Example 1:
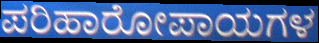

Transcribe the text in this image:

ಪರಿಹಾರೋಪಾಯಗಳ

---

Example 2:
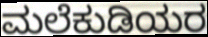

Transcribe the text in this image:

ಮಲೆಕುಡಿಯರ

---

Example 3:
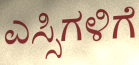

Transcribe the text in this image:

ಎಸ್ಸಿಗಳಿಗೆ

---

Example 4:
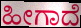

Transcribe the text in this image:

ಹೀಗಾದೆ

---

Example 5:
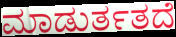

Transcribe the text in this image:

ಮಾಡುರ್ತತದೆ